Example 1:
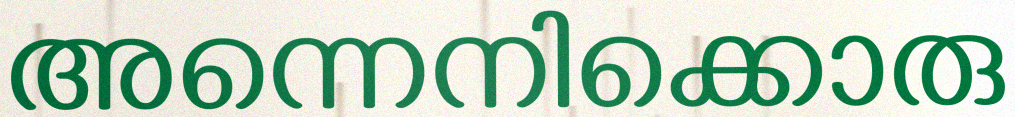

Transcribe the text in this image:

അന്നെനിക്കൊരു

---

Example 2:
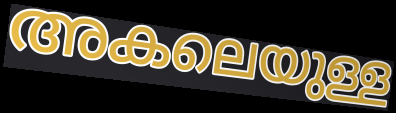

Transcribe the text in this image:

അകലെയുള്ള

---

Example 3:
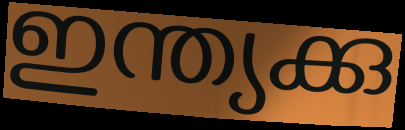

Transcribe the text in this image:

ഇന്ത്യക്കു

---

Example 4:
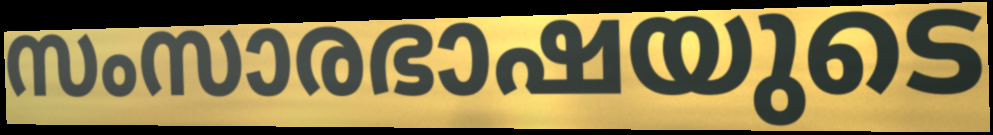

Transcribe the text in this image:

സംസാരഭാഷയുടെ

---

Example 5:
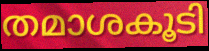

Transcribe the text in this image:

തമാശകൂടി